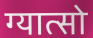
ग्यात्सो